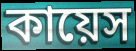
কায়েস